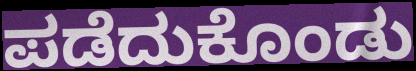
ಪಡೆದುಕೊಂಡು